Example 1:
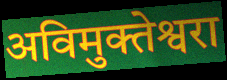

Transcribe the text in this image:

अविमुक्तेश्वरा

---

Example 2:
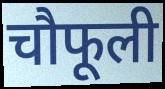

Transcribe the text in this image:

चौफूली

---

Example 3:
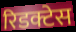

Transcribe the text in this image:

रिडक्टेस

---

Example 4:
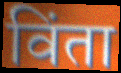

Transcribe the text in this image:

विंता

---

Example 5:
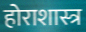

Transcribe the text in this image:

होराशास्त्र